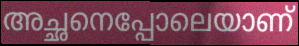
അച്ഛനെപ്പോലെയാണ്